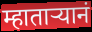
म्हातार्‍यानं